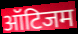
ऑटिजम